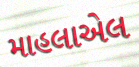
માહલાએલ